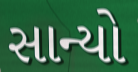
સાન્યો